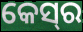
କେସ୍‌ର